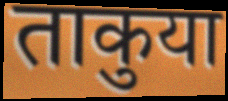
ताकुया